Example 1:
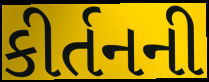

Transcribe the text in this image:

કીર્તનની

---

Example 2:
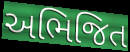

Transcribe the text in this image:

અભિજિત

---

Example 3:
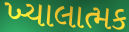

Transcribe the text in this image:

ખ્યાલાત્મક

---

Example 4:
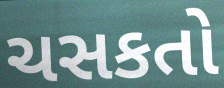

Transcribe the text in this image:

ચસકતો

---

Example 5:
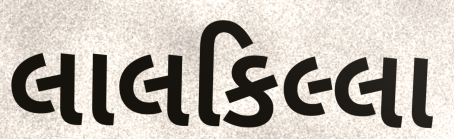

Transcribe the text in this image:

લાલકિલ્લા